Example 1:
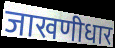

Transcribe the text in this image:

जाखणीधार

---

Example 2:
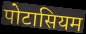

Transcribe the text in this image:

पोटासियम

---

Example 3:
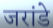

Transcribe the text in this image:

जरांडे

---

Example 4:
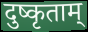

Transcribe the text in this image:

दुष्कृताम्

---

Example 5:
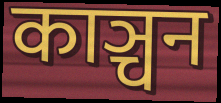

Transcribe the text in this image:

काञ्चन